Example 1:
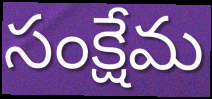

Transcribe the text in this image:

సంక్షేమ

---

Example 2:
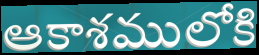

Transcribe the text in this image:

ఆకాశములోకి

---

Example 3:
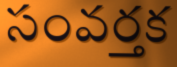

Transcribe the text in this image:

సంవర్తక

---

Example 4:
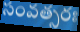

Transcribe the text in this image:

సంవత్సరః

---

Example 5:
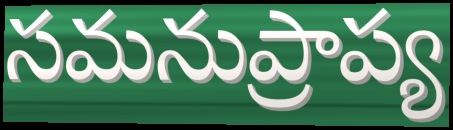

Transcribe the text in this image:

సమనుప్రాప్య